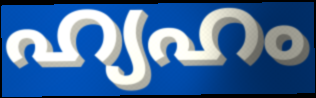
ഹ്യഹം